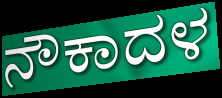
ನೌಕಾದಳ